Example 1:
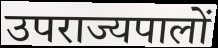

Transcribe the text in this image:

उपराज्यपालों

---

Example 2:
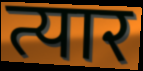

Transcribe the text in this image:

त्यार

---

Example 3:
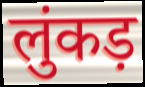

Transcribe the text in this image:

लुंकड़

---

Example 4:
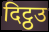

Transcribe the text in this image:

दिट्ठउ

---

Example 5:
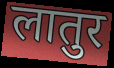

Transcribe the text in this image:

लातुर